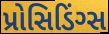
પ્રોસિડિંગ્સ